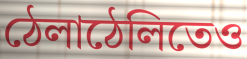
ঠেলাঠেলিতেও